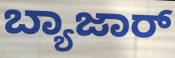
ಬ್ಯಾಜಾರ್